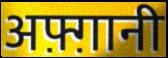
अफ़्ग़ानी